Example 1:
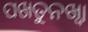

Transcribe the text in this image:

ପଖତୁନଖ୍ୱା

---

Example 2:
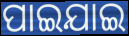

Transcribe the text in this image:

ପାଇଯାଇ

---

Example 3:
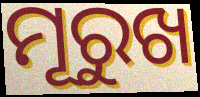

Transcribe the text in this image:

ମୂରୁଖ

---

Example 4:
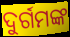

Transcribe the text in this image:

ଦୁର୍ଗମଙ୍କ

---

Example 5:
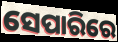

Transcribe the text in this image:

ସେପାରିରେ